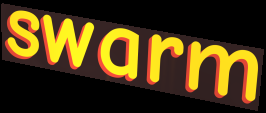
swarm